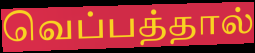
வெப்பத்தால்